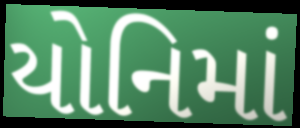
યોનિમાં